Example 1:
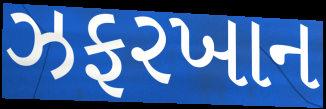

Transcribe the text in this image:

ઝફરખાન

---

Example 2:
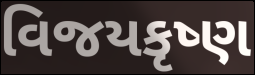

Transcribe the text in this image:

વિજયકૃષ્ણ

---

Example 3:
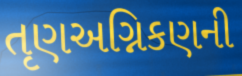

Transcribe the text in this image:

તૃણઅગ્નિકણની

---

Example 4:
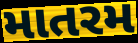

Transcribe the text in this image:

માતરમ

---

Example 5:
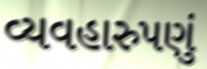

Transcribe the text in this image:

વ્યવહારુપણું